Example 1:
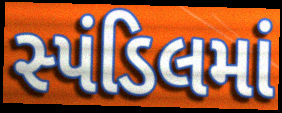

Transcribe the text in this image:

સ્પંડિલમાં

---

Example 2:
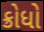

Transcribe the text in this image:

ક્રોધો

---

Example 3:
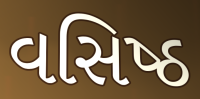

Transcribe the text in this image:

વસિષ્‍ઠ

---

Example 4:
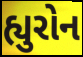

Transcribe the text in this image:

હ્યુરોન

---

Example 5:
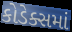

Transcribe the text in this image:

કોડેક્સમાં